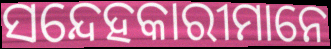
ସନ୍ଦେହକାରୀମାନେ